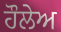
ਹੌਲੇਅ